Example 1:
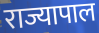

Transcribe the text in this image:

राज्यापाल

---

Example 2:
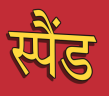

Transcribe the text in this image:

स्पैंड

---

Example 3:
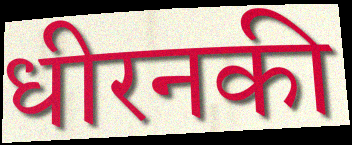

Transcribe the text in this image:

धीरनकी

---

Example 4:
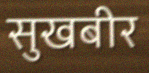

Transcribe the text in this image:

सुखबीर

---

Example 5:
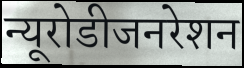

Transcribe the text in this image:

न्यूरोडीजनरेशन